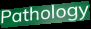
Pathology